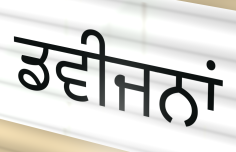
ਡਵੀਜਨਾਂ